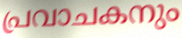
പ്രവാചകനും